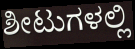
ಶೀಟುಗಳಲ್ಲಿ